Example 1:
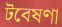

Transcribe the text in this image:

টবেষণা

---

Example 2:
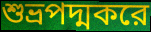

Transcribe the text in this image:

শুভ্রপদ্মকরে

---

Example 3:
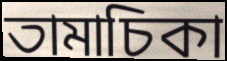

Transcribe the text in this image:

তামাচিকা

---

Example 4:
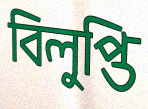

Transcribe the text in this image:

বিলুপ্তি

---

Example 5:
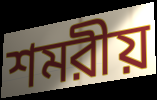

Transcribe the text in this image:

শমরীয়